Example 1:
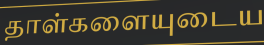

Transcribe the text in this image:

தாள்களையுடைய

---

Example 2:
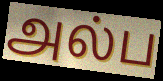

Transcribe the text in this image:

அல்ப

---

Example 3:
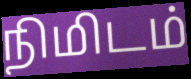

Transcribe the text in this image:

நிமிடம்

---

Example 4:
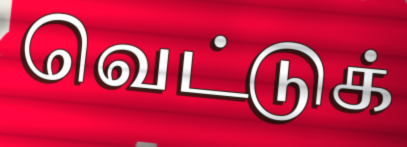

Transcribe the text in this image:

வெட்டுக்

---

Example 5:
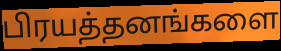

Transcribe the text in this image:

பிரயத்தனங்களை